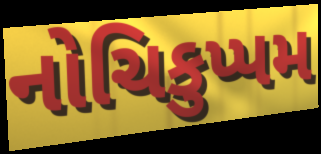
નોચિકુપ્પમ